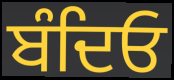
ਬੰਦਿਓ